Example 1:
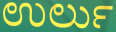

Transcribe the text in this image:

ಉರ್ಲು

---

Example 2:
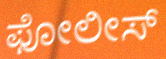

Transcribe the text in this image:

ಫೋಲೀಸ್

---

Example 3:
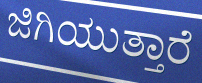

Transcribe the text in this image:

ಜಿಗಿಯುತ್ತಾರೆ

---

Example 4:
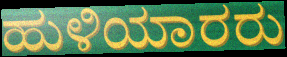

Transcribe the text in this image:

ಹುಳಿಯಾರರು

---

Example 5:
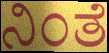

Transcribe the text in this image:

ನಿಂತೆ